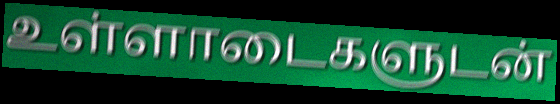
உள்ளாடைகளுடன்